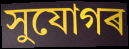
সুযোগৰ